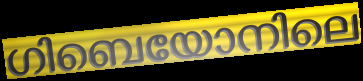
ഗിബെയോനിലെ